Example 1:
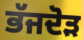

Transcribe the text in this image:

ਭੱਜਦੋੜ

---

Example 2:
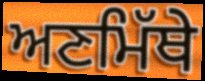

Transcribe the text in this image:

ਅਣਮਿੱਥੇ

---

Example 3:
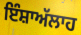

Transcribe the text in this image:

ਇੰਸ਼ਾਅੱਲਾਹ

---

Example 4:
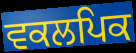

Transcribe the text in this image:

ਵਕਲਪਿਕ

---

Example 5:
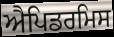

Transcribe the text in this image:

ਐਪਿਡਰਮਿਸ